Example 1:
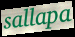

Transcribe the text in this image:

sallapa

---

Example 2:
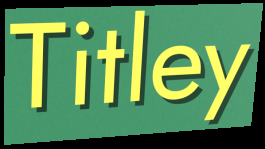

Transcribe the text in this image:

Titley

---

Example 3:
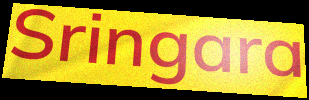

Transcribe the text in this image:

Sringara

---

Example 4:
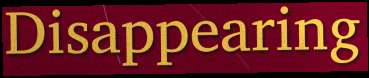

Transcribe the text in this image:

Disappearing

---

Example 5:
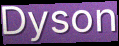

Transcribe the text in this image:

Dyson